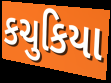
કચુકિયા